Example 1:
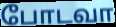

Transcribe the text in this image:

போடவா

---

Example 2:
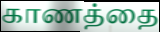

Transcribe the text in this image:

காணத்தை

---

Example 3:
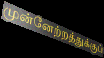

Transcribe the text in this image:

முன்னேற்றத்துக்குப்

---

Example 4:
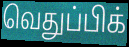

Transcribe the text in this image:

வெதுப்பிக்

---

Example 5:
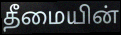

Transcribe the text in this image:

தீமையின்